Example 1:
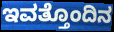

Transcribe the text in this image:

ಇವತ್ತೊಂದಿನ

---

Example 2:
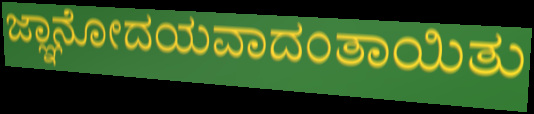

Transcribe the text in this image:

ಜ್ಞಾನೋದಯವಾದಂತಾಯಿತು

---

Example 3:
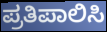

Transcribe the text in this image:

ಪ್ರತಿಪಾಲಿಸಿ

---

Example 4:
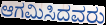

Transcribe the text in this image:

ಆಗಮಿಸಿದವರು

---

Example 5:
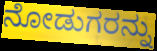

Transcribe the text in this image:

ನೋಡುಗರನ್ನು